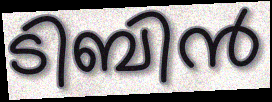
ടിബിൻ